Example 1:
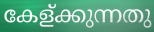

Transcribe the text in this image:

കേള്ക്കുന്നതു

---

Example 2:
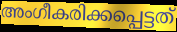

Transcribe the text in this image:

അംഗീകരിക്കപ്പെട്ടത്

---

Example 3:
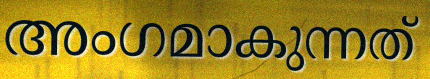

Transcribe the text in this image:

അംഗമാകുന്നത്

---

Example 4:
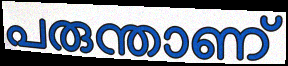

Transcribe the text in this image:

പരുന്താണ്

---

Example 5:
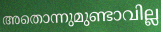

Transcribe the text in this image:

അതൊന്നുമുണ്ടാവില്ല